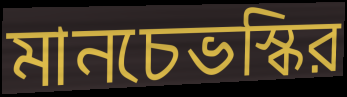
মানচেভস্কির